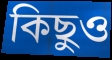
কিছুও